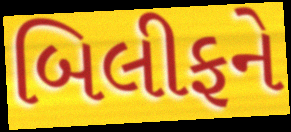
બિલીફને